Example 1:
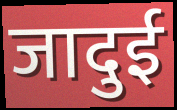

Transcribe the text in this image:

जादुई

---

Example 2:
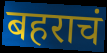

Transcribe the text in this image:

बहराचं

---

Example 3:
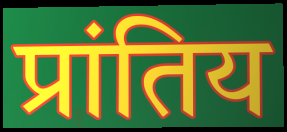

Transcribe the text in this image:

प्रांतिय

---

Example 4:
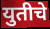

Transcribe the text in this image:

युतीचे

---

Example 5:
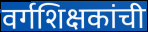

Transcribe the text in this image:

वर्गशिक्षकांची